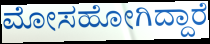
ಮೋಸಹೋಗಿದ್ದಾರೆ